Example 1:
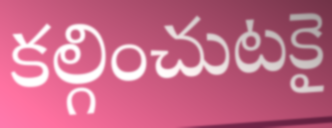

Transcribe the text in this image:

కల్గించుటకై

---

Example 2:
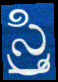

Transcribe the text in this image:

స్ర్తి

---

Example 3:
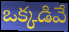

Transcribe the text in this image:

ఒక్కడివే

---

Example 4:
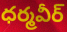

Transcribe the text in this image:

ధర్మవీర్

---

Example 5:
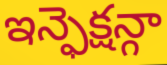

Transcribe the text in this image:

ఇన్ఫెక్షన్గా